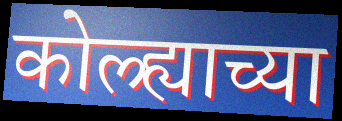
कोल्ह्याच्या